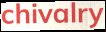
chivalry